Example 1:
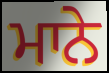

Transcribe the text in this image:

ਮਾਨੇ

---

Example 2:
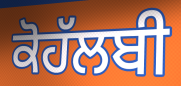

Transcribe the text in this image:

ਕੋਹੱਲਬੀ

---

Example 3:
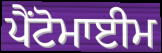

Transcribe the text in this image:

ਪੈਂਟੋਮਾਈਮ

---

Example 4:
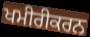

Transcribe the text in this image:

ਖਮੀਰੀਕਰਨ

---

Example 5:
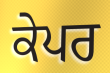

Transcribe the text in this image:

ਕੇਪਰ